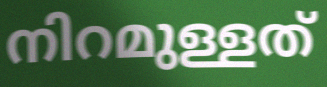
നിറമുള്ളത്